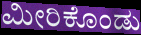
ಮೀರಿಕೊಂಡು